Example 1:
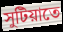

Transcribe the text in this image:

সুটিয়াতে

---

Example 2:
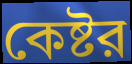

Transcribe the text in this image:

কেষ্টর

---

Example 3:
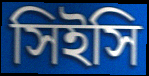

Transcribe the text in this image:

সিইসি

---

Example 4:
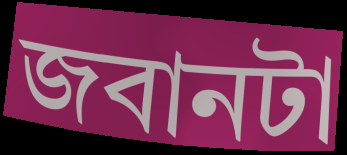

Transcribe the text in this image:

জবানটা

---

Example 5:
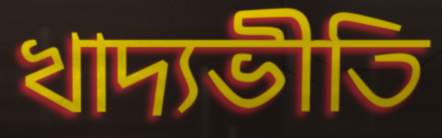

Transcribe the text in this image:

খাদ্যভীতি